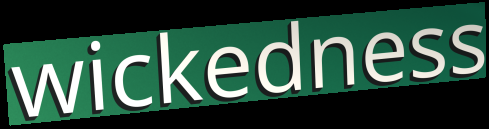
wickedness